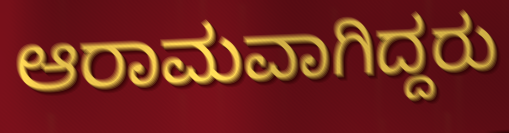
ಆರಾಮವಾಗಿದ್ದರು